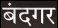
बंदगर